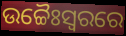
ଉଚ୍ଚୈଃସ୍ୱରରେ